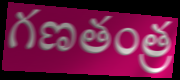
గణతంత్ర